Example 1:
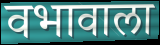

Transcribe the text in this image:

वभावाला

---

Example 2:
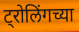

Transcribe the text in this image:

ट्रोलिंगच्या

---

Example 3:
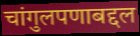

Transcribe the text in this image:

चांगुलपणाबद्दल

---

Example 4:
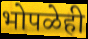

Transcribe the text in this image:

भोपळेही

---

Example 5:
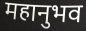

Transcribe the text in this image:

महानुभव